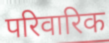
परिवारिक